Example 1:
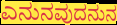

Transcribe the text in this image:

ಎನುನವುದನುನ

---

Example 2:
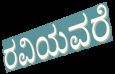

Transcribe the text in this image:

ರವಿಯವರೆ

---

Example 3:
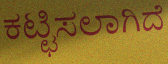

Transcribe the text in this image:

ಕಟ್ಟಿಸಲಾಗಿದೆ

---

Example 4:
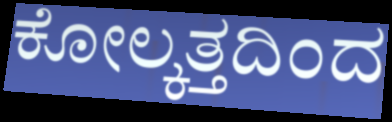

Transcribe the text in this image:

ಕೋಲ್ಕತ್ತದಿಂದ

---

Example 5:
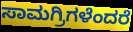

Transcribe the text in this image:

ಸಾಮಗ್ರಿಗಳೆಂದರೆ